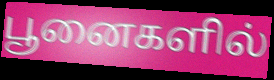
பூனைகளில்